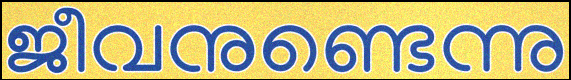
ജീവനുണ്ടെന്നു